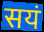
सयं